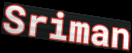
Sriman